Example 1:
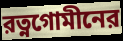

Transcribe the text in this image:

রত্নগোমীনের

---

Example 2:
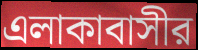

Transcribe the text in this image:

এলাকাবাসীর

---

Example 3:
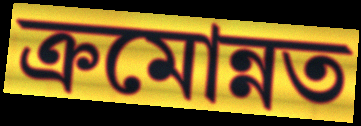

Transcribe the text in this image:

ক্রমোন্নত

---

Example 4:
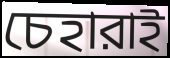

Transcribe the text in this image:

চেহারাই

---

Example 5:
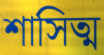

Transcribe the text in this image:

শাসিত্ম